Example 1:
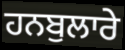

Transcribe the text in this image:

ਹਨਬੁਲਾਰੇ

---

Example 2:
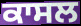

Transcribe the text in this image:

ਕਾਸਲ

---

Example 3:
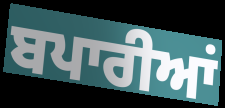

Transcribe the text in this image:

ਬਪਾਰੀਆਂ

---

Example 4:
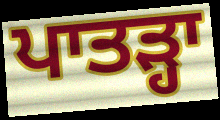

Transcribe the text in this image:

ਪਾਤੜ੍ਹਾ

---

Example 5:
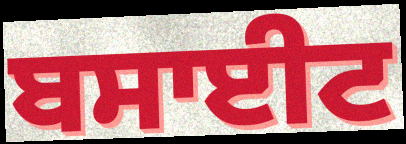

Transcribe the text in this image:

ਬਸਾਈਟ